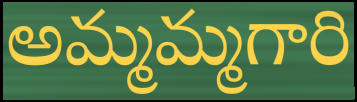
అమ్మమ్మగారి